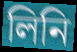
লিনি